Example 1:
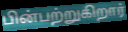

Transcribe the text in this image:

பின்பற்றுகிறார்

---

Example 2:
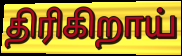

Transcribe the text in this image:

திரிகிறாய்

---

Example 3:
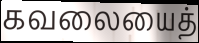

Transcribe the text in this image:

கவலையைத்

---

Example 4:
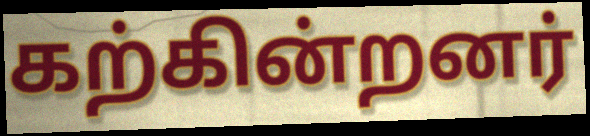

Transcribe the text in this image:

கற்கின்றனர்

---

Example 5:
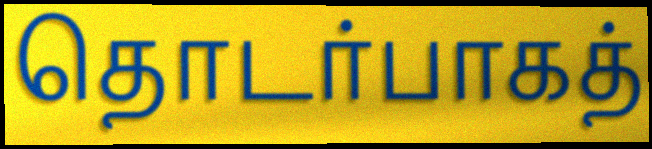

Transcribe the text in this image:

தொடர்பாகத்